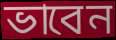
ভাবেন